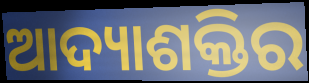
ଆଦ୍ୟାଶକ୍ତିର